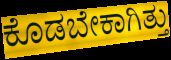
ಕೊಡಬೇಕಾಗಿತ್ತು